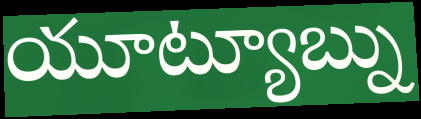
యూట్యూబ్ను